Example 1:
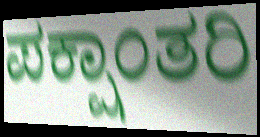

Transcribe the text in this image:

ಪಕ್ಷಾಂತರಿ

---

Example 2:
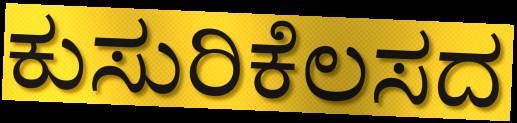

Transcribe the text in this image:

ಕುಸುರಿಕೆಲಸದ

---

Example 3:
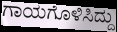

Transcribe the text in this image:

ಗಾಯಗೊಳಿಸಿದ್ದು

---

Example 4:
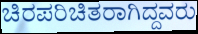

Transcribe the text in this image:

ಚಿರಪರಿಚಿತರಾಗಿದ್ದವರು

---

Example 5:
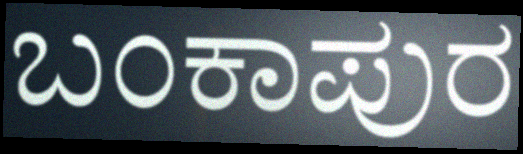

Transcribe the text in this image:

ಬಂಕಾಪುರ